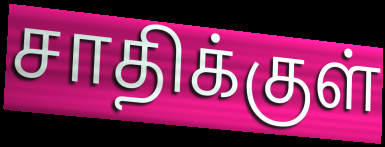
சாதிக்குள்